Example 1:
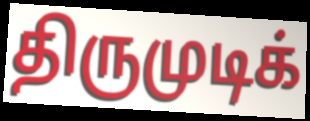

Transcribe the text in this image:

திருமுடிக்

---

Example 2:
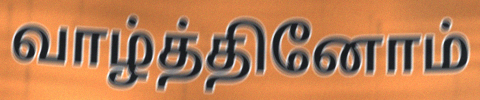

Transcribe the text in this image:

வாழ்த்தினோம்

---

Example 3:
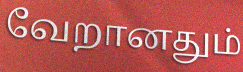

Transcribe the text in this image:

வேறானதும்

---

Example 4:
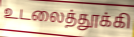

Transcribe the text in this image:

உடலைத்தூக்கி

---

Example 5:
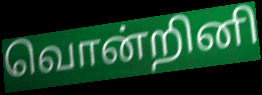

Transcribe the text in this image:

வொன்றினி